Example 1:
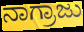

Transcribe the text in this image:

ನಾಗ್ರಾಜು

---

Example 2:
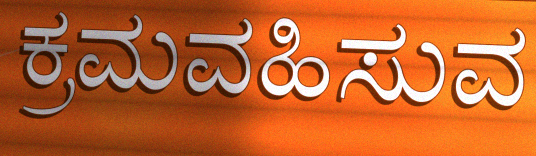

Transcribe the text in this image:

ಕ್ರಮವಹಿಸುವ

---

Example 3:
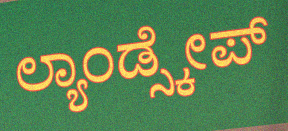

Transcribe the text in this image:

ಲ್ಯಾಂಡ್ಸ್ಕೇಪ್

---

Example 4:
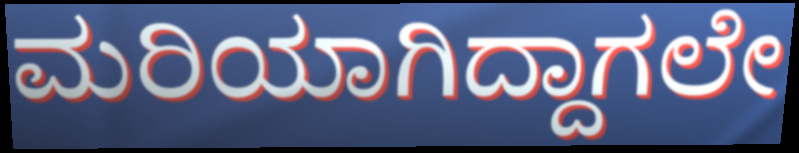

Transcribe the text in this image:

ಮರಿಯಾಗಿದ್ದಾಗಲೇ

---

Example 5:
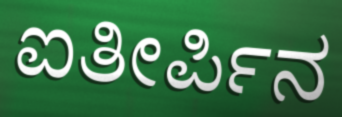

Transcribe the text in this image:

ಐತೀರ್ಪಿನ